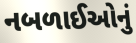
નબળાઈઓનું